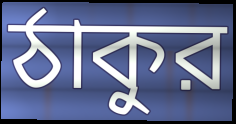
ঠাকুর